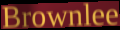
Brownlee